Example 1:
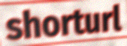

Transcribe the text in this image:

shorturl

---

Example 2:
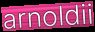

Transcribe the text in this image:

arnoldii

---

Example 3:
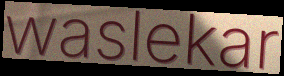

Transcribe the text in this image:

waslekar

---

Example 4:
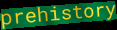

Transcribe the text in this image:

prehistory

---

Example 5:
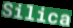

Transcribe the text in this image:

Silica